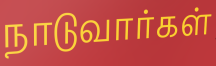
நாடுவார்கள்